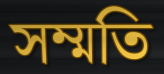
সম্মতি